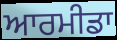
ਆਰਮੀਡਾ